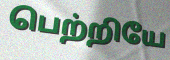
பெற்றியே